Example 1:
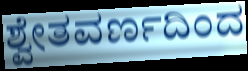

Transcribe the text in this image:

ಶ್ವೇತವರ್ಣದಿಂದ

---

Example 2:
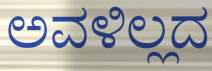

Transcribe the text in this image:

ಅವಳಿಲ್ಲದ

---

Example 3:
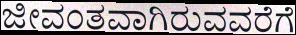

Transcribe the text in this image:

ಜೀವಂತವಾಗಿರುವವರೆಗೆ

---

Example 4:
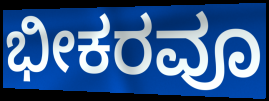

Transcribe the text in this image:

ಭೀಕರವೂ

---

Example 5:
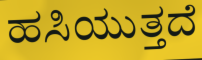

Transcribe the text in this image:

ಹಸಿಯುತ್ತದೆ